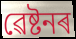
ৱেষ্টনৰ